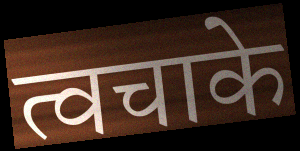
त्वचाके